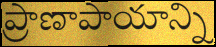
ప్రాణాపాయాన్ని